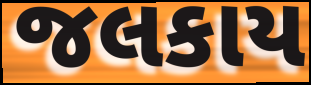
જલકાય